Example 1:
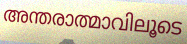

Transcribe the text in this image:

അന്തരാത്മാവിലൂടെ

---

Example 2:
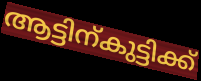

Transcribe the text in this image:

ആട്ടിന്കുട്ടിക്ക്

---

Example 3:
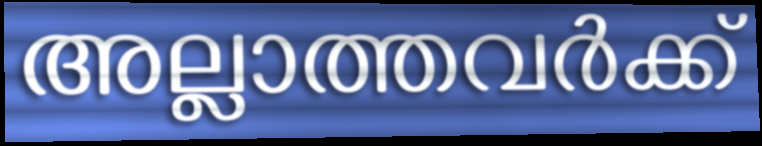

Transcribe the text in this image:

അല്ലാത്തവർക്ക്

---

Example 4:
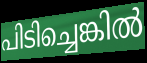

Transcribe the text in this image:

പിടിച്ചെങ്കിൽ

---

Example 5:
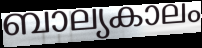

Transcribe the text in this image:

ബാല്യകാലം